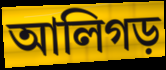
আলিগড়